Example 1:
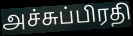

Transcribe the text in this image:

அச்சுப்பிரதி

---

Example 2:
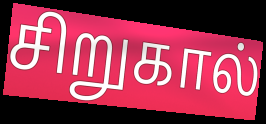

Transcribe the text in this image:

சிறுகால்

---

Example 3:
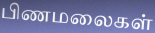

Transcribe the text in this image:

பிணமலைகள்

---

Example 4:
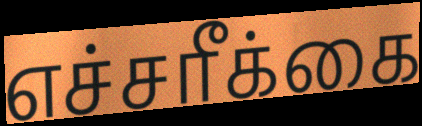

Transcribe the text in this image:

எச்சரீக்கை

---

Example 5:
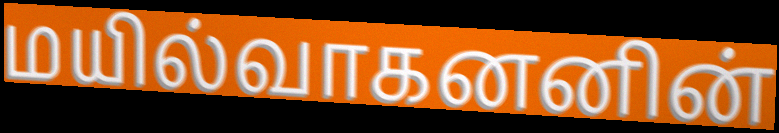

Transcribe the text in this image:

மயில்வாகனனின்